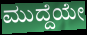
ಮುದ್ದೆಯೇ